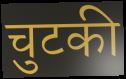
चुटकी